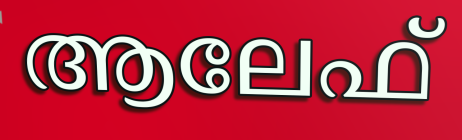
ആലേഫ്